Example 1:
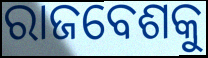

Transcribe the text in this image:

ରାଜବେଶକୁ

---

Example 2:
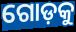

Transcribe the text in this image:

ଗୋଡ଼କୁ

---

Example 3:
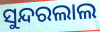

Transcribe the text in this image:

ସୁନ୍ଦରଲାଲ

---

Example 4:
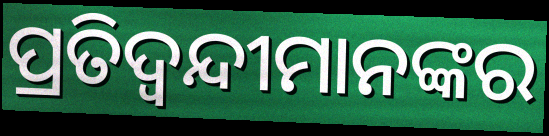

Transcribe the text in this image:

ପ୍ରତିଦ୍ୱନ୍ଦୀମାନଙ୍କର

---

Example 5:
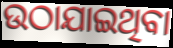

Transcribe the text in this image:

ଉଠାଯାଇଥିବା